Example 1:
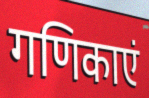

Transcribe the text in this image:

गणिकाएं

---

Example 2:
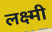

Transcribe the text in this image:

लक्ष्मी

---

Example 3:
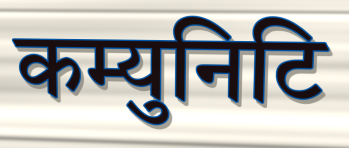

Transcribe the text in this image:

कम्युनिटि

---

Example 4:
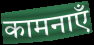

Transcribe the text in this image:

कामनाएँ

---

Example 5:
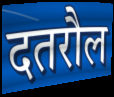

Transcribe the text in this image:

दतरौल